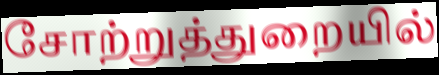
சோற்றுத்துறையில்